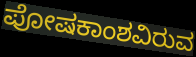
ಪೋಷಕಾಂಶವಿರುವ